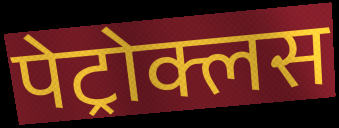
पेट्रोक्लस